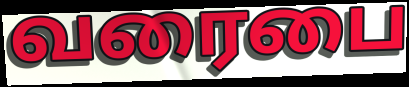
வரைபை